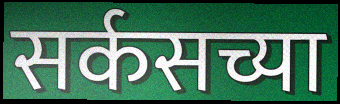
सर्कसच्या